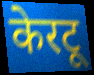
केरटू